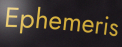
Ephemeris